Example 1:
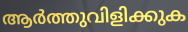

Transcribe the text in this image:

ആർത്തുവിളിക്കുക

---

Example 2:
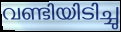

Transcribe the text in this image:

വണ്ടിയിടിച്ചു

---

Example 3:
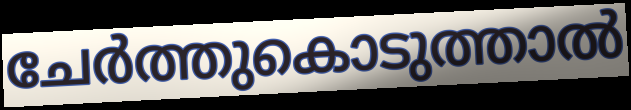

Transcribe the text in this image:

ചേർത്തുകൊടുത്താൽ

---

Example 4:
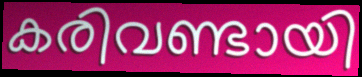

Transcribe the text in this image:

കരിവണ്ടായി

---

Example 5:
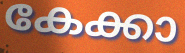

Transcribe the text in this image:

കേക്കാ